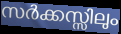
സർക്കസ്സിലും